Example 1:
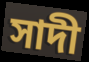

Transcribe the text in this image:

সাদী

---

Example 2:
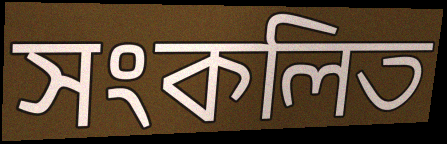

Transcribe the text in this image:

সংকলিত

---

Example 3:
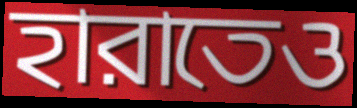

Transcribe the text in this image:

হারাতেও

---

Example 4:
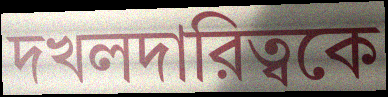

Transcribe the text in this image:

দখলদারিত্বকে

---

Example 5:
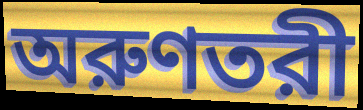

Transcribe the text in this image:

অরুণতরী